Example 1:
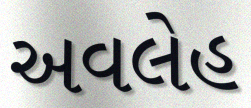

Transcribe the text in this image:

અવલેહ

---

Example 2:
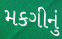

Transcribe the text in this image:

મકગીનું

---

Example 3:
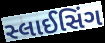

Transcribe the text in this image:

સ્લાઈસિંગ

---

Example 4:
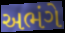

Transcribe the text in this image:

અભંગે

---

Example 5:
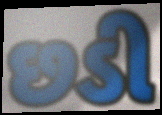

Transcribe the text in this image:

છડી